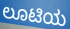
ಲೂಟಿಯ